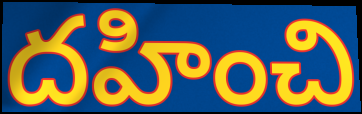
దహించి